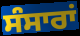
ਸੰਸਾਰਾਂ